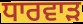
ਧਾਰਵਾੜ